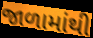
જાળામાંથી